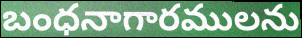
బంధనాగారములను